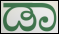
ಡಾ